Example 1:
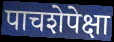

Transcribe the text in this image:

पाचशेपेक्षा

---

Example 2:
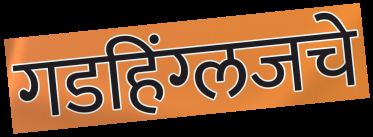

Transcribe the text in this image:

गडहिंग्लजचे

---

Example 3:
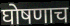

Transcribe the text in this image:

घोषणाच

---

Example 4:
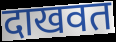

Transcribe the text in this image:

दाखवत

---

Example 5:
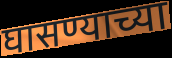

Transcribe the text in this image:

घासण्याच्या